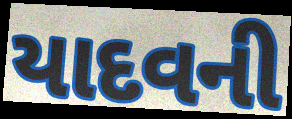
યાદવની